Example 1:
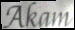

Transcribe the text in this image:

Akam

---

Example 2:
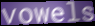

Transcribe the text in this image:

vowels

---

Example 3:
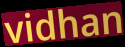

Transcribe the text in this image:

vidhan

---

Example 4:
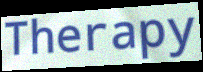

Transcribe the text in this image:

Therapy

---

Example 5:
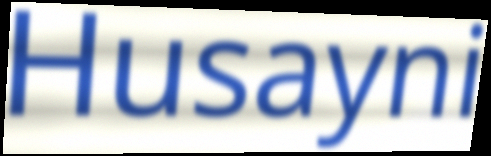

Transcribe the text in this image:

Husayni